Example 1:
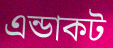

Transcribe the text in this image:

এন্ডাকট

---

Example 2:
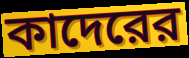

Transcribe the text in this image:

কাদেরের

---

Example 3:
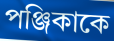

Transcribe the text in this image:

পঞ্জিকাকে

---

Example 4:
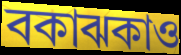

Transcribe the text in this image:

বকাঝকাও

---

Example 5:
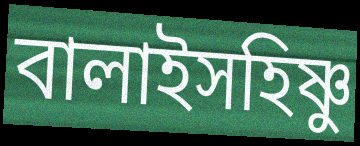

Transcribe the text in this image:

বালাইসহিষ্ণু